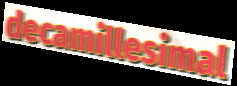
decamillesimal